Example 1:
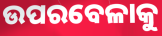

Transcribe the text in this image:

ଉପରବେଳାକୁ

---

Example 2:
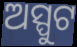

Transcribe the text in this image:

ଅସ୍ପୁଟ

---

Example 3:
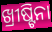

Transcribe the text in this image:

ଖ୍ରୀଷ୍ଟିନା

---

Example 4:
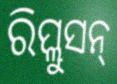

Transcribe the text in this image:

ରିପ୍ଲୁସନ୍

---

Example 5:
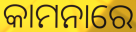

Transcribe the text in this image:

କାମନାରେ